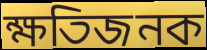
ক্ষতিজনক